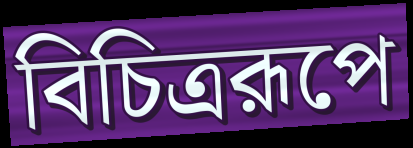
বিচিত্ররূপে